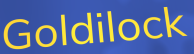
Goldilock